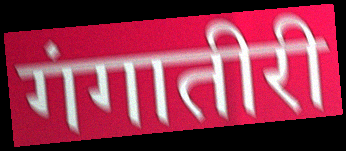
गंगातीरी